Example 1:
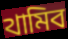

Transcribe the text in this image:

থামিব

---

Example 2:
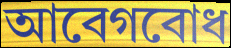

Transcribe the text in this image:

আবেগবোধ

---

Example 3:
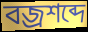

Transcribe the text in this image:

বজ্রশব্দে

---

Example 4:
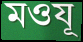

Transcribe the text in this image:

মওযূ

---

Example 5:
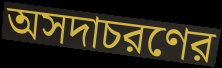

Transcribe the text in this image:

অসদাচরণের